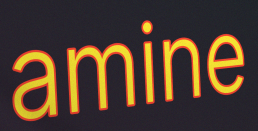
amine